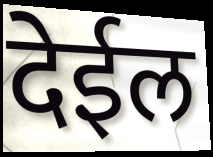
देईल